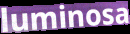
luminosa